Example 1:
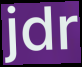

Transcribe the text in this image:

jdr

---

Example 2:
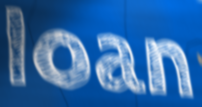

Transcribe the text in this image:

Ioan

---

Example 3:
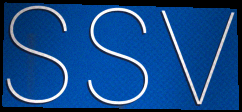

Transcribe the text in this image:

SSV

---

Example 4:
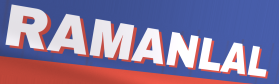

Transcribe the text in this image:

RAMANLAL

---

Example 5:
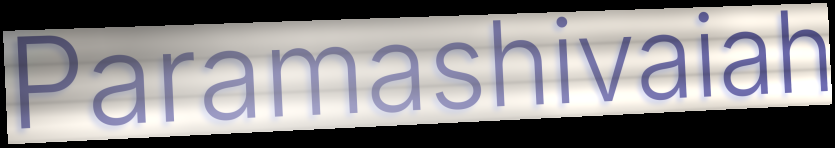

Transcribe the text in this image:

Paramashivaiah